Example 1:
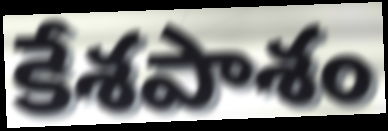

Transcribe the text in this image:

కేశపాశం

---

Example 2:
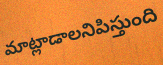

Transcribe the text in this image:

మాట్లాడాలనిపిస్తుంది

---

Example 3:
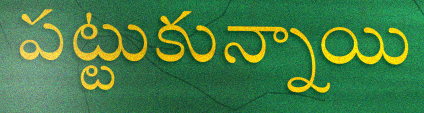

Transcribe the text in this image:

పట్టుకున్నాయి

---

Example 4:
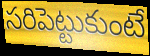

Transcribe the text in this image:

సరిపెట్టుకుంటే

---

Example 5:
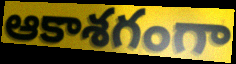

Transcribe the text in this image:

ఆకాశగంగా